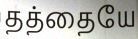
தத்தையே